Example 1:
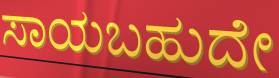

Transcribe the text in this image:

ಸಾಯಬಹುದೇ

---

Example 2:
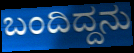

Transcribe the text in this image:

ಬಂದಿದ್ದನು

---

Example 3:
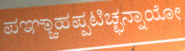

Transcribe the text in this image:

ಪಞ್ಚಾಹಪ್ಪಟಿಚ್ಛನ್ನಾಯೋ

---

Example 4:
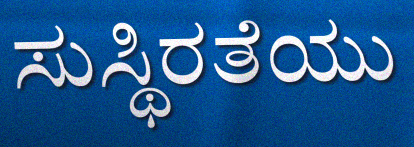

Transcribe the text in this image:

ಸುಸ್ಥಿರತೆಯು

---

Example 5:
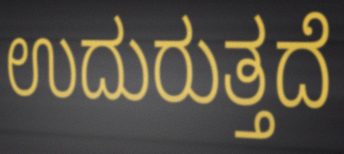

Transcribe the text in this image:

ಉದುರುತ್ತದೆ